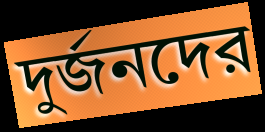
দুর্জনদের